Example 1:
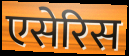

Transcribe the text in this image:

एसेरिस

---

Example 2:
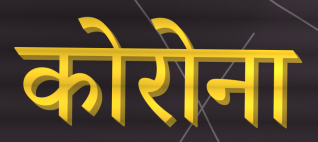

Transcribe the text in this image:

कोरोना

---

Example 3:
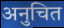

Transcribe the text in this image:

अनुचित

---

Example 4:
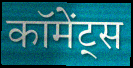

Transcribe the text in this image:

कॉमेंट्स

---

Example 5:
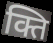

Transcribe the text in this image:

क्ति